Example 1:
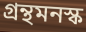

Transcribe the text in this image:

গ্রন্থমনস্ক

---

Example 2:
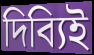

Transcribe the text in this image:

দিব্যিই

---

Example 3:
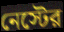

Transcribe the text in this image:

নেস্টের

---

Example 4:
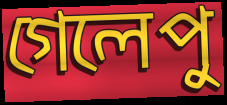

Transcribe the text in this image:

গেলেপু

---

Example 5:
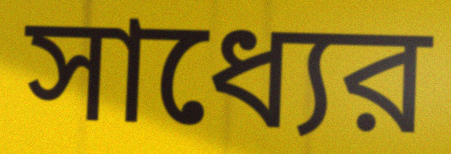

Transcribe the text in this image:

সাধ্যের